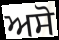
ਅਸੋ